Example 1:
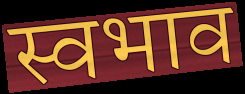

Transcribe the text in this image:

स्वभाव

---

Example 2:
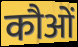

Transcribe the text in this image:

कौओं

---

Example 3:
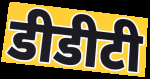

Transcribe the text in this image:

डीडीटी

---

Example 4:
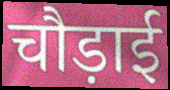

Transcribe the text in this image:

चौड़ाई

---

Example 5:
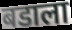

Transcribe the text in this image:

बडाला